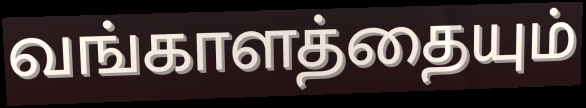
வங்காளத்தையும்